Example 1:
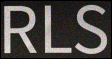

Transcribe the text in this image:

RLS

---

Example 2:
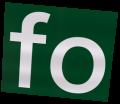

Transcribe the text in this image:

fo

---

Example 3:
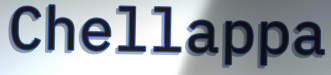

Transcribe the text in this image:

Chellappa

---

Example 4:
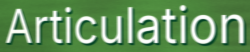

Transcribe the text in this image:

Articulation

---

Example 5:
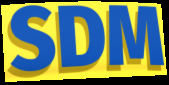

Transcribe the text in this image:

SDM